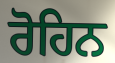
ਰੋਹਿਨ